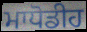
ਮਾਧੋਡੀਹ